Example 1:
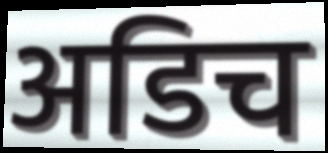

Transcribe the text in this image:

अडिच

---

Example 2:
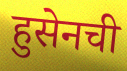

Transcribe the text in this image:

हुसेनची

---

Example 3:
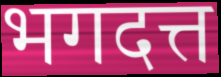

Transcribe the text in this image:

भगदत्त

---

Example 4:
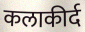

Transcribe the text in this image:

कलाकीर्द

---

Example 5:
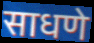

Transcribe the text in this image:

साधणे